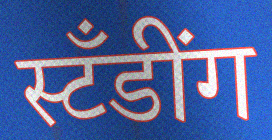
स्टँडींग